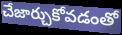
చేజార్చుకోవడంతో